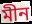
মীন